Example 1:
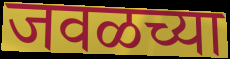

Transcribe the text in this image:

जवळच्या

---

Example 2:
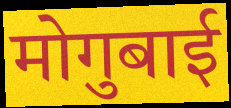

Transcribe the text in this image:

मोगुबाई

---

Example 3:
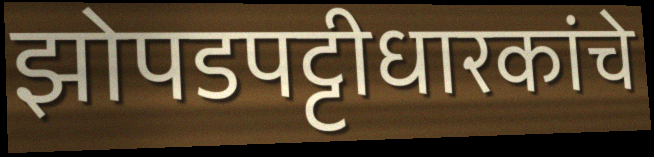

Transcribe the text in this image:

झोपडपट्टीधारकांचे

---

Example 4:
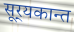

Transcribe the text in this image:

सूर्यकान्त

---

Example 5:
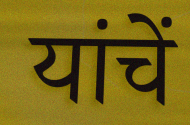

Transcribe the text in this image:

यांचें